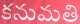
కనుమతి